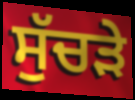
ਸੁੱਚੜੇ